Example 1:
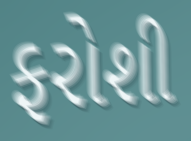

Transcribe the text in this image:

ફરોશી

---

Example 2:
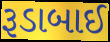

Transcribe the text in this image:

રૂડાબાઈ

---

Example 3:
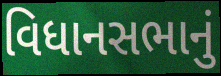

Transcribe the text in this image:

વિધાનસભાનું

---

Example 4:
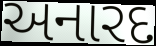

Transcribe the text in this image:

અનારદ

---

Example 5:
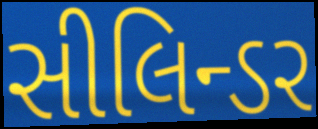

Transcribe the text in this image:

સીલિન્ડર